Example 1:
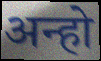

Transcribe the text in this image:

अन्हो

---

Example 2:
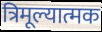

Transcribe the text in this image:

त्रिमूल्यात्मक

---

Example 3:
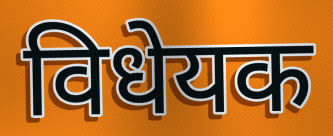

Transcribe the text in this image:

विधेयक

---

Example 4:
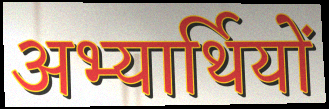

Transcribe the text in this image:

अभ्यार्थियों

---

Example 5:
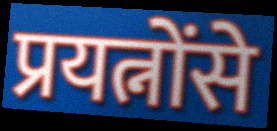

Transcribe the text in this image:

प्रयत्नोंसे